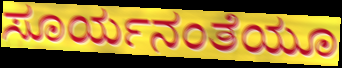
ಸೂರ್ಯನಂತೆಯೂ